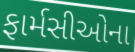
ફાર્મસીઓના